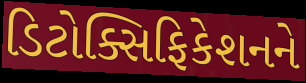
ડિટોક્સિફિકેશનને